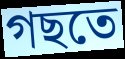
গছতে